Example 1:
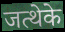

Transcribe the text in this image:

जत्थेके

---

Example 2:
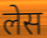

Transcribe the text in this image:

लेस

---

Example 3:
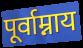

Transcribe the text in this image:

पूर्वाम्नाय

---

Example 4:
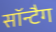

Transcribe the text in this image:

सॉन्टैग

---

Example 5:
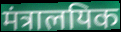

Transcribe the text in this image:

मंत्रालयिक